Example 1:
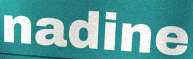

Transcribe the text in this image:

nadine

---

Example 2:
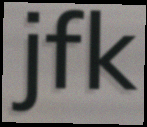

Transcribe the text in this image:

jfk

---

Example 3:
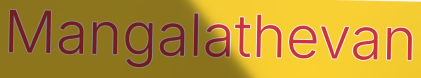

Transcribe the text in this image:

Mangalathevan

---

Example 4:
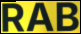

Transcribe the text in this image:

RAB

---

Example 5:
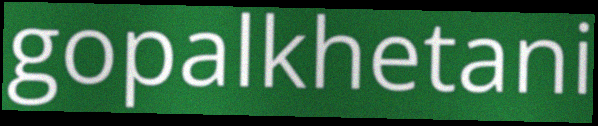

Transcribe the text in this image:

gopalkhetani